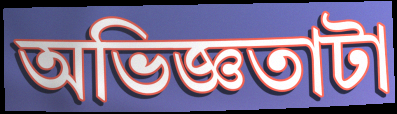
অভিজ্ঞতাটা